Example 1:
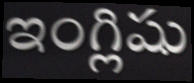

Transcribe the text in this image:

ఇంగ్లిషు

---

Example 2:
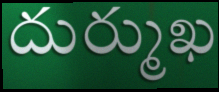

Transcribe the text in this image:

దుర్ముఖ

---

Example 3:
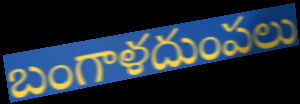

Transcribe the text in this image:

బంగాళదుంపలు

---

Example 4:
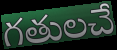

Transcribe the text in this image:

గతులచే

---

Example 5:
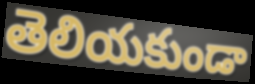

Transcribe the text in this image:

తెలియకుండా